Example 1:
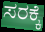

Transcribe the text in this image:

ಸರಕ್ಕೆ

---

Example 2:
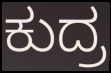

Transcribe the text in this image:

ಕುದ್ರ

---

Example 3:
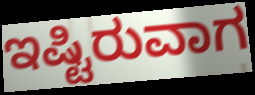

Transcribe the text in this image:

ಇಷ್ಟಿರುವಾಗ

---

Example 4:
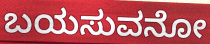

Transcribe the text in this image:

ಬಯಸುವನೋ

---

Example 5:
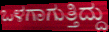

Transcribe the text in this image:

ಒಳಗಾಗುತ್ತಿದ್ದು